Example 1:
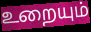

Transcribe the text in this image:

உறையும்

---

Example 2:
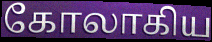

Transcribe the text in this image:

கோலாகிய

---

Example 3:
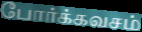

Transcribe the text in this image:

போர்க்கவசம்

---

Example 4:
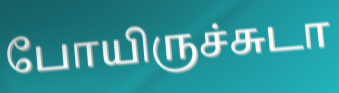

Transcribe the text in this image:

போயிருச்சுடா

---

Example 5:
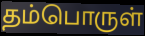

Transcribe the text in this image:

தம்பொருள்